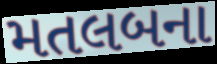
મતલબના